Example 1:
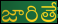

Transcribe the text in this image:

జారితే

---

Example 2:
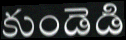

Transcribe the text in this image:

కుండెడి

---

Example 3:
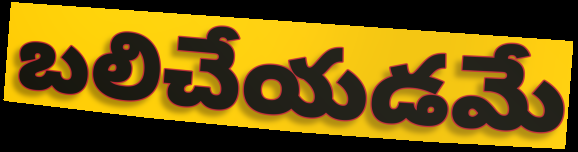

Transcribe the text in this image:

బలిచేయడమే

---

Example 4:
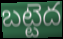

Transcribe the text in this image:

బట్టెద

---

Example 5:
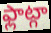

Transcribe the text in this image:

ఫ్లాట్గా